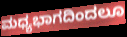
ಮಧ್ಯಭಾಗದಿಂದಲೂ